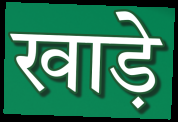
खाड़े